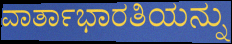
ವಾರ್ತಾಭಾರತಿಯನ್ನು